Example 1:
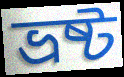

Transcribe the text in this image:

ভ্রষ্ট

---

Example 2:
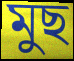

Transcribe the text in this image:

মুছ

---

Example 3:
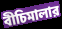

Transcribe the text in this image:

বীচিমালার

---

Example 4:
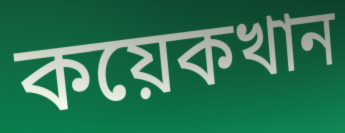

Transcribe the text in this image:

কয়েকখান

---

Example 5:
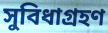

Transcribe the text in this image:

সুবিধাগ্রহণ